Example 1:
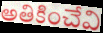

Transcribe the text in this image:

అతికించేవి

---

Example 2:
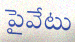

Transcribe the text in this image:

పైవేటు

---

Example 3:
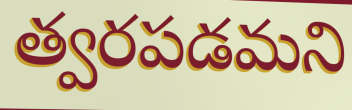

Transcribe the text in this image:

త్వరపడమని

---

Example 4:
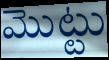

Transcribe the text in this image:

మొట్టు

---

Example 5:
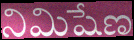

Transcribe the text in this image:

నిమిషేణ